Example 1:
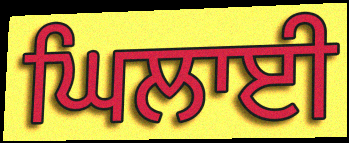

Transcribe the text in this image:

ਘਿਲਾਈ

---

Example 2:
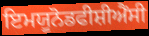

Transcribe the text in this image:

ਇਮਯੂਨੋਡਫੀਸ਼ੀਐਂਸੀ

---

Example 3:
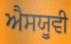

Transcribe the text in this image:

ਐਸਯੂਵੀ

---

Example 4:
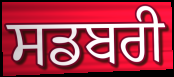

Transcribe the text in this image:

ਸਡਬਰੀ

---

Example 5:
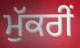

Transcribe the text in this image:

ਮੁੱਕਰੀਂ